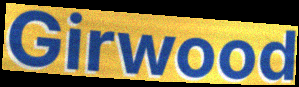
Girwood